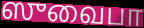
ஸுவைபா